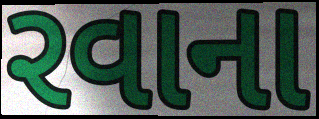
રવાના